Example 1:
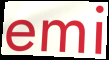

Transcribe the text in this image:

emi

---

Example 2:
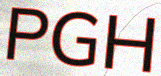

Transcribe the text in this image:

PGH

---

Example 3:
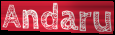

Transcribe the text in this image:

Andaru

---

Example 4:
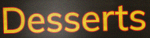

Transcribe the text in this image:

Desserts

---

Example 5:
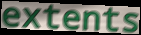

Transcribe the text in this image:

extents